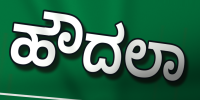
ಹೌದಲಾ